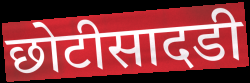
छोटीसादडी